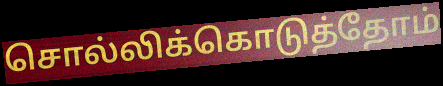
சொல்லிக்கொடுத்தோம்